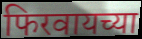
फिरवायच्या